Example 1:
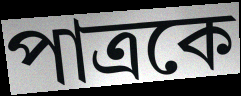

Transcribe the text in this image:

পাত্রকে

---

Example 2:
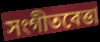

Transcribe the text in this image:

সংগীতবেত্তা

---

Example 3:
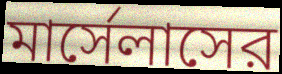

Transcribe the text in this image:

মার্সেলাসের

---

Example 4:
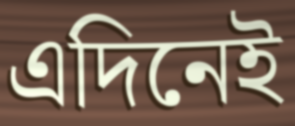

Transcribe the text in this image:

এদিনেই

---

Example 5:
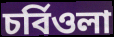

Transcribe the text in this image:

চর্বিওলা